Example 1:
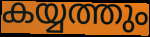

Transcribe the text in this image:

കയ്യത്തും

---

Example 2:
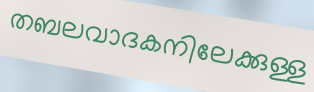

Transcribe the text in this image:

തബലവാദകനിലേക്കുള്ള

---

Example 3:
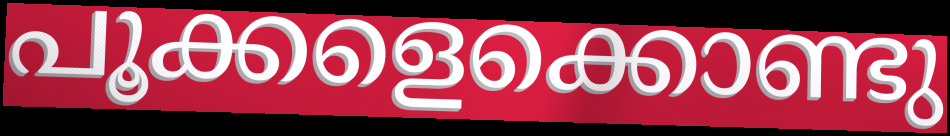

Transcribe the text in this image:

പൂക്കളെക്കൊണ്ടു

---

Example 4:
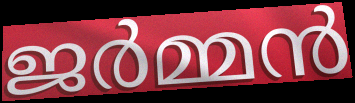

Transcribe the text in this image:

ജർമ്മൻ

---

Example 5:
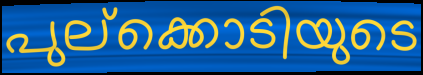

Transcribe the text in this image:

പുല്ക്കൊടിയുടെ